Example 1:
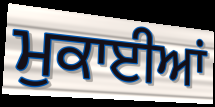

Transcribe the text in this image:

ਮੁਕਾਈਆਂ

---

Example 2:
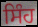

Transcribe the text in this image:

ਸਿੰਹ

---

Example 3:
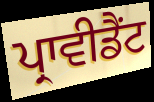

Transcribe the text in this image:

ਪ੍ਰਾਵੀਡੈਂਟ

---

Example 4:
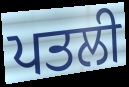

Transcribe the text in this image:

ਪਤਲੀ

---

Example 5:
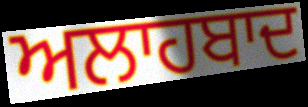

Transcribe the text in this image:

ਅਲਾਹਬਾਦ